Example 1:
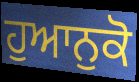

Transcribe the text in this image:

ਹੁਆਨੁਕੋ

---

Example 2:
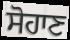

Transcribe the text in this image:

ਸੋਹਾਣ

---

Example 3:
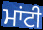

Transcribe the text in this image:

ਮਾਂਟੀ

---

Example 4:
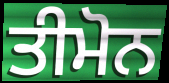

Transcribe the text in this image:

ਤੀਮੋਨ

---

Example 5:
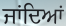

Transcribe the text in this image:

ਜਾਂਦਿਆਂ